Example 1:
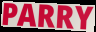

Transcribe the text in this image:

PARRY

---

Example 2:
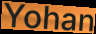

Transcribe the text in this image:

Yohan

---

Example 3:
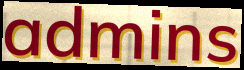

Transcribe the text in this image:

admins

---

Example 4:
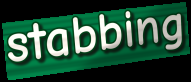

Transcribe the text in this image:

stabbing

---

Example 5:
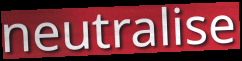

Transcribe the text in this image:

neutralise